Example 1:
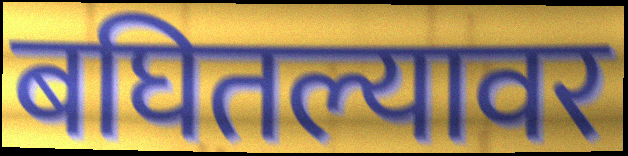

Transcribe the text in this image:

बघितल्यावर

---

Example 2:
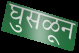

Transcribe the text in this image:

घुसळून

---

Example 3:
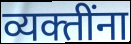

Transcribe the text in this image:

व्यक्‍तींना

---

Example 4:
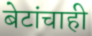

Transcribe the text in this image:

बेटांचाही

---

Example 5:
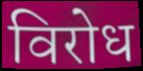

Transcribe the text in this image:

विरोध